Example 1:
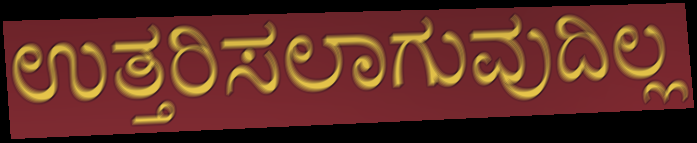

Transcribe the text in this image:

ಉತ್ತರಿಸಲಾಗುವುದಿಲ್ಲ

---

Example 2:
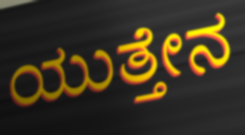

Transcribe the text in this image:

ಯುತ್ತೇನ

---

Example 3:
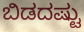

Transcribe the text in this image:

ಬಿಡದಷ್ಟು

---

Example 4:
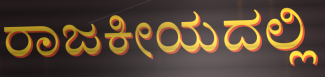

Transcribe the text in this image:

ರಾಜಕೀಯದಲ್ಲಿ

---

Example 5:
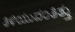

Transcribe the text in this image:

ತಿಳಿಯುವಂತಿತ್ತು